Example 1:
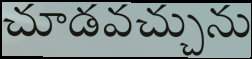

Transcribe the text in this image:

చూడవచ్చును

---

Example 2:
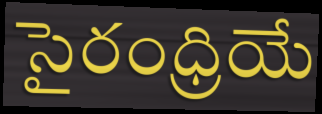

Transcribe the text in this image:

సైరంధ్రియే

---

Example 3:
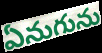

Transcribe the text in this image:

ఏనుగును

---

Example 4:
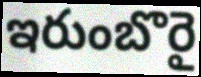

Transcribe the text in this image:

ఇరుంబొరై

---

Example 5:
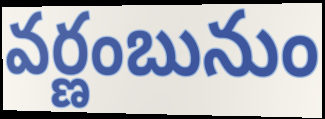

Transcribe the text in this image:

వర్ణంబునుం